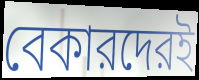
বেকারদেরই